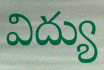
విద్యు